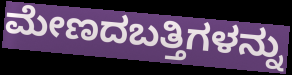
ಮೇಣದಬತ್ತಿಗಳನ್ನು